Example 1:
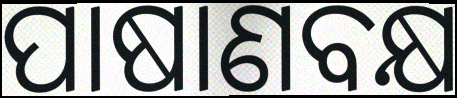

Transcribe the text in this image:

ପାଷାଣବକ୍ଷ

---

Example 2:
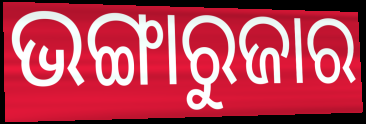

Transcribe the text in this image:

ଭଙ୍ଗାରୁଜାର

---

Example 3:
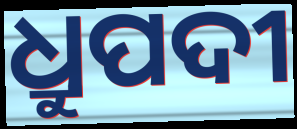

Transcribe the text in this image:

ଧ୍ରୁପଦୀ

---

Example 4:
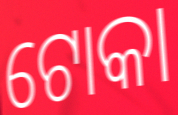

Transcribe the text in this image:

ଟୋକା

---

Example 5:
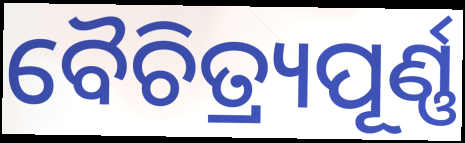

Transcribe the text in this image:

ବୈଚିତ୍ର୍ୟପୂର୍ଣ୍ଣ